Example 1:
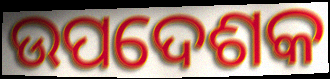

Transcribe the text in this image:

ଉପଦେଶକ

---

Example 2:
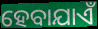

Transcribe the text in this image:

ହେବାଯାଏଁ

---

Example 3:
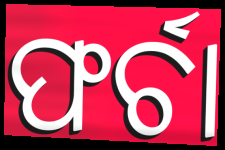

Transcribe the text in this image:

ଫର୍ଚା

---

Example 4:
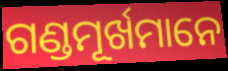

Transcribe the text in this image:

ଗଣ୍ଡମୂର୍ଖମାନେ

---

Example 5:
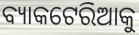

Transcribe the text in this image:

ବ୍ୟାକଟେରିଆକୁ